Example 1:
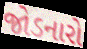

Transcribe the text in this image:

જોડનારો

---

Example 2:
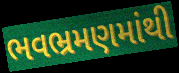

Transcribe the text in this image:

ભવભ્રમણમાંથી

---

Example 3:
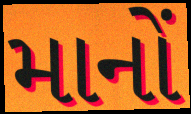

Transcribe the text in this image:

માનોં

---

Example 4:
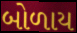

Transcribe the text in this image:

બોળાય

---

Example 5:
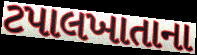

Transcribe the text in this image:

ટપાલખાતાના